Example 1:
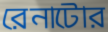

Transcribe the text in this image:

রেনাটোর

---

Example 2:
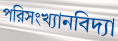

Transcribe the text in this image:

পরিসংখ্যানবিদ্যা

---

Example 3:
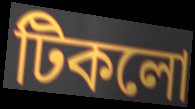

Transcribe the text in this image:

টিকলো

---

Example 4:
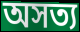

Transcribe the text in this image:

অসত্য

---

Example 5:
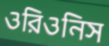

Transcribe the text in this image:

ওরিওনিস